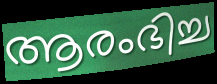
ആരംഭിച്ച